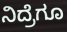
ನಿದ್ರೆಗೂ